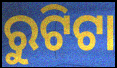
ରୁଟିଟା